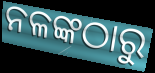
ନଳଙ୍କଠାରୁ